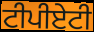
ਟੀਪੀਏਟੀ